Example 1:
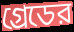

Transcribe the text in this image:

গ্রেডের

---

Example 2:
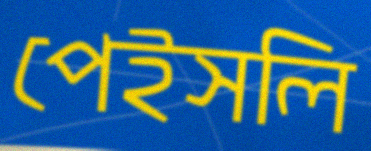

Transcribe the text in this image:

পেইসলি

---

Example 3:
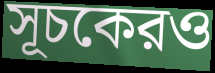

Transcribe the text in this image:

সূচকেরও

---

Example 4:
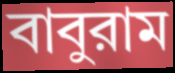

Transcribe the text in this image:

বাবুরাম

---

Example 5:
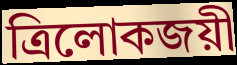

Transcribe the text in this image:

ত্রিলোকজয়ী